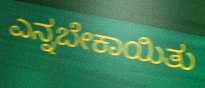
ಎನ್ನಬೇಕಾಯಿತು